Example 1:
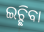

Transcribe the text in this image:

ଇଚ୍ଛିବା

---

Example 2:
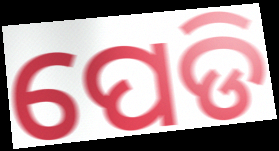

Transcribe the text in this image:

ପେଡି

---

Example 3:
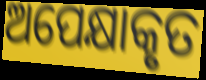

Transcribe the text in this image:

ଅପେକ୍ଷାକୃତ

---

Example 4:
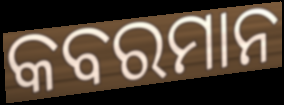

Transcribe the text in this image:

କବରମାନ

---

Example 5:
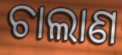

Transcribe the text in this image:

ଚାଲାଣ